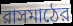
রাসমাঠের